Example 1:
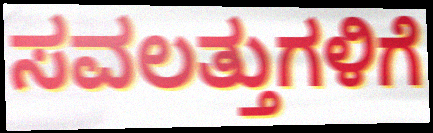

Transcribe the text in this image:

ಸವಲತ್ತುಗಳಿಗೆ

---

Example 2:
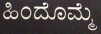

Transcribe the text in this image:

ಹಿಂದೊಮ್ಮೆ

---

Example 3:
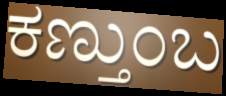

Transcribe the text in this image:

ಕಣ್ತುಂಬ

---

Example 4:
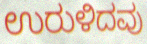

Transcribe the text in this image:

ಉರುಳಿದವು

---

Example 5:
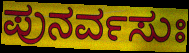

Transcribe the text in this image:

ಪುನರ್ವಸುಃ